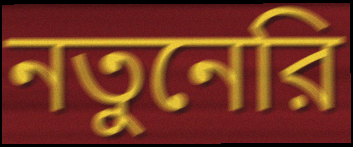
নতুনেরি